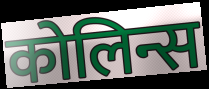
कोलिन्स